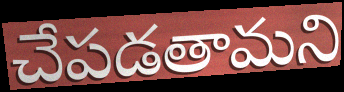
చేపడతామని